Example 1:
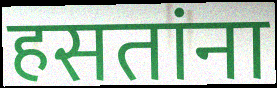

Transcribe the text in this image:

हसतांना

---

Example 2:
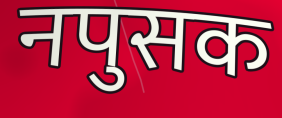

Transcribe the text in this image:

नपुसक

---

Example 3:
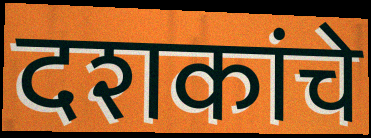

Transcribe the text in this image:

दशकांचे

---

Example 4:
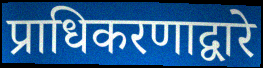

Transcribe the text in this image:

प्राधिकरणाद्वारे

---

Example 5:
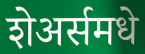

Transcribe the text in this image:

शेअर्समधे